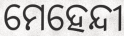
ମେହେନ୍ଦୀ